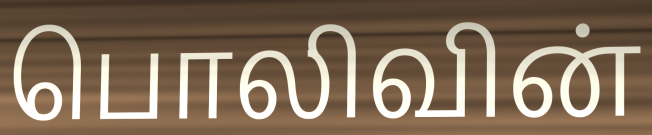
பொலிவின்